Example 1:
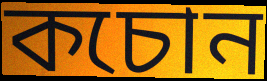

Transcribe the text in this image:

কচোন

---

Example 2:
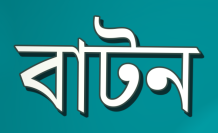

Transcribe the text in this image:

বাটন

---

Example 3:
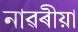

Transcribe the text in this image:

নাৱৰীয়া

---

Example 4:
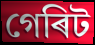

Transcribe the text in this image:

গেৰিট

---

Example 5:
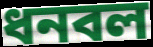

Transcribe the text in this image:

ধনবল